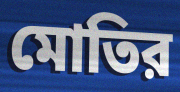
মোতির